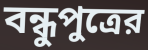
বন্ধুপুত্রের